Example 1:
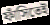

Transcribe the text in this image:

ফাঁসিতেই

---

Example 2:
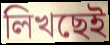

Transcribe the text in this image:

লিখছেই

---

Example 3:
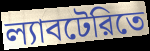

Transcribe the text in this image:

ল্যাবটেরিতে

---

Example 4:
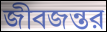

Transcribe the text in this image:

জীবজন্তর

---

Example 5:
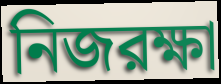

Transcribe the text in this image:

নিজরক্ষা